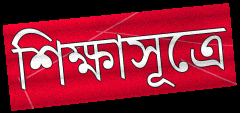
শিক্ষাসূত্রে